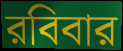
রবিবার